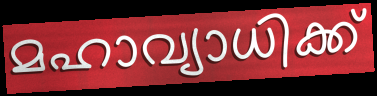
മഹാവ്യാധിക്ക്